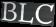
BLC